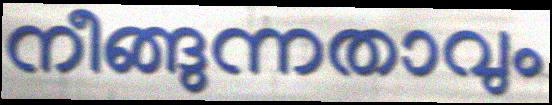
നീങ്ങുന്നതാവും